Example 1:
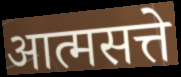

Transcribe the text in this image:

आत्मसत्ते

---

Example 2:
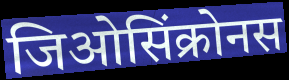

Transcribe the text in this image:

जिओसिंक्रोनस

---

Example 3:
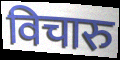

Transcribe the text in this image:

विचारु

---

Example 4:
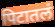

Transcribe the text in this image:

पिटातलं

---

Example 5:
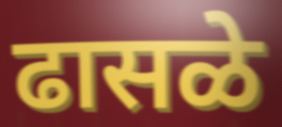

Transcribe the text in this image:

ढासळे